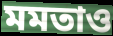
মমতাও